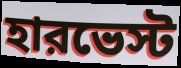
হারভেস্ট